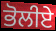
ਭੋਲੀਏ